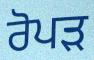
ਰੋਪੜ